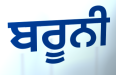
ਬਰੂਨੀ